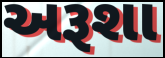
અરૂશા